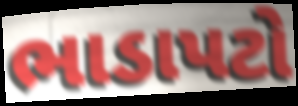
ભાડાપટો